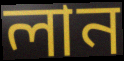
লান